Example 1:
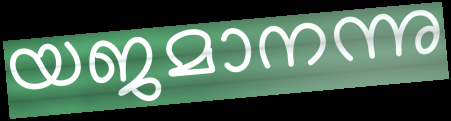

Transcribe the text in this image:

യജമാനന്നു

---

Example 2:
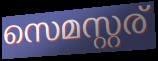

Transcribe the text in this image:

സെമസ്റ്റര്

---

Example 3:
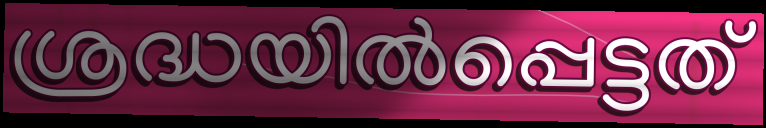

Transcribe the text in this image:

ശ്രദ്ധയിൽപ്പെട്ടത്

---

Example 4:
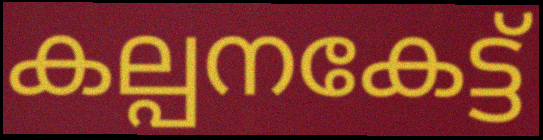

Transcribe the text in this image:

കല്പനകേട്ട്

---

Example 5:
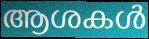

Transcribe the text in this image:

ആശകൾ